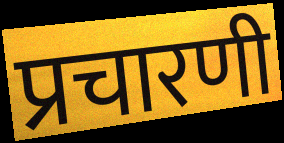
प्रचारणी